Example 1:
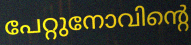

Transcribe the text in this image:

പേറ്റുനോവിന്റെ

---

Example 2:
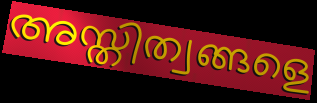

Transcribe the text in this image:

അസ്തിത്വങ്ങളെ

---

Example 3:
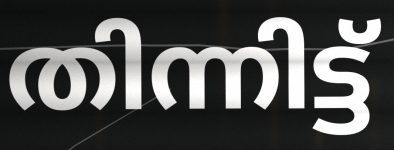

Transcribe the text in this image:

തിന്നിട്ട്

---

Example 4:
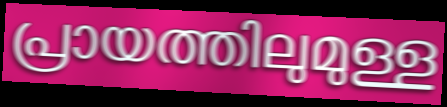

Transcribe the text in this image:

പ്രായത്തിലുമുള്ള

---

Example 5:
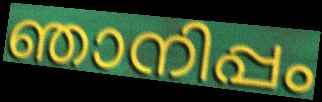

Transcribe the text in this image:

ഞാനിപ്പം